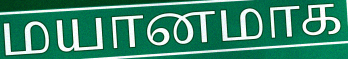
மயானமாக